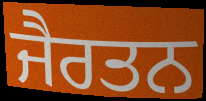
ਜੈਰਤਨ